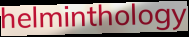
helminthology